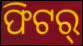
ଫିଟର୍